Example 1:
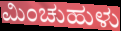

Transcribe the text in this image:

ಮಿಂಚುಹುಳು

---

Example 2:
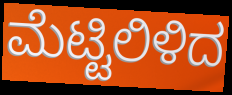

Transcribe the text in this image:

ಮೆಟ್ಟಿಲಿಳಿದ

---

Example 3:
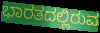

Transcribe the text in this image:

ಭಾರತದಲ್ಲಿರುವ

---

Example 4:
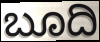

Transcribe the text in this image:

ಬೂದಿ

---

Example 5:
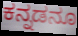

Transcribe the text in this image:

ಕನ್ನಡನೂ